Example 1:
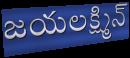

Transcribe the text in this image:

జయలక్ష్మిన్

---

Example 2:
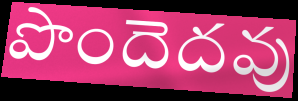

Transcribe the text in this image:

పొందెదవు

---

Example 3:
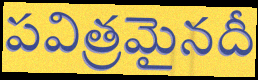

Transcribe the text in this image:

పవిత్రమైనదీ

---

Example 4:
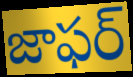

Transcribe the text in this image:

జాఫర్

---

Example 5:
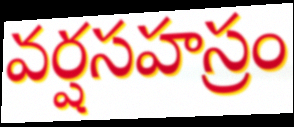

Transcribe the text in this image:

వర్షసహస్రం